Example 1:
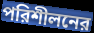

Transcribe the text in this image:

পরিশীলনের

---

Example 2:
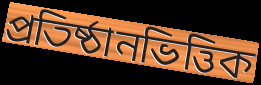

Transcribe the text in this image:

প্রতিষ্ঠানভিত্তিক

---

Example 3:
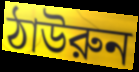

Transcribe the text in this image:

ঠাউরুন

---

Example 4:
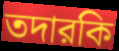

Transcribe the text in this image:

তদারকি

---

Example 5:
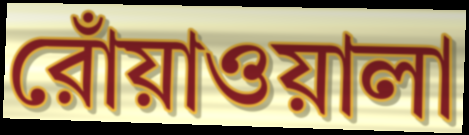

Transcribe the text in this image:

রোঁয়াওয়ালা